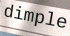
dimple